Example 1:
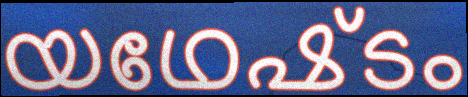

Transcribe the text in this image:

യഥേഷ്‌ടം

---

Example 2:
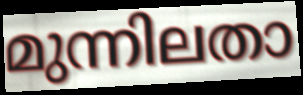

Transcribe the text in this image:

മുന്നിലതാ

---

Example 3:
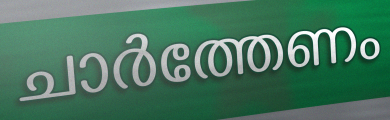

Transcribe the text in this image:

ചാർത്തേണം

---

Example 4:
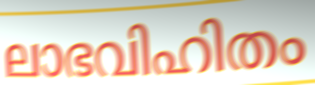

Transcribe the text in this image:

ലാഭവിഹിതം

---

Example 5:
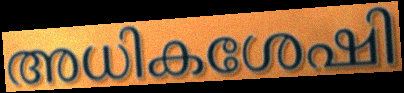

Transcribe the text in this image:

അധികശേഷി